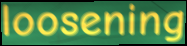
loosening